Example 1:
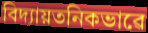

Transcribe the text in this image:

বিদ্য়ায়তনিকভাৱে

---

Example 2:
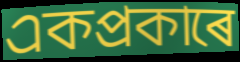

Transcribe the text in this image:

একপ্ৰকাৰে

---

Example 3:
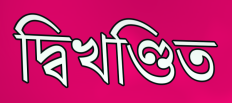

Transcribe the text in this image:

দ্বিখণ্ডিত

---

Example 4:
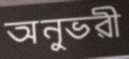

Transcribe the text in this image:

অনুভৱী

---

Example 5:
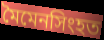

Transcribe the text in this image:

মৈমেনসিংহত